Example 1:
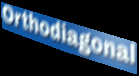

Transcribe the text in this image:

Orthodiagonal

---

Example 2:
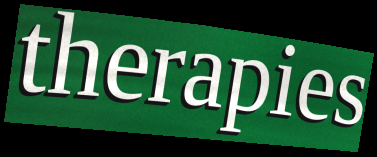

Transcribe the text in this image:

therapies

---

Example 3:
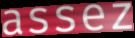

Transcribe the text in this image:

assez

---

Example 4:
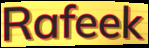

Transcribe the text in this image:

Rafeek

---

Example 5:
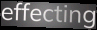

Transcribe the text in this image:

effecting